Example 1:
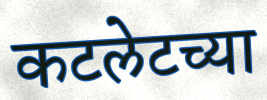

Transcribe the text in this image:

कटलेटच्या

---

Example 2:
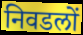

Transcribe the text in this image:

निवडलों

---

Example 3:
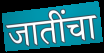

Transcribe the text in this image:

जातींचा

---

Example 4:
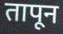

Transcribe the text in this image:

तापून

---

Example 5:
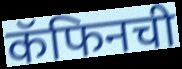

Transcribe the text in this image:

कॅफिनची